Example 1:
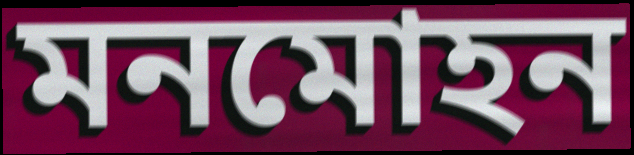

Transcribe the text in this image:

মনমোহন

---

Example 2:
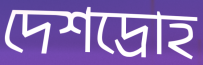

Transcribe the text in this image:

দেশদ্রোহ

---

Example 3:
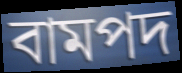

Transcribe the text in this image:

বামপদ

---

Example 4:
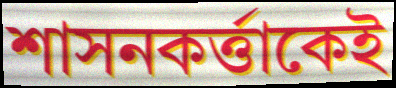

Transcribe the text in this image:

শাসনকর্ত্তাকেই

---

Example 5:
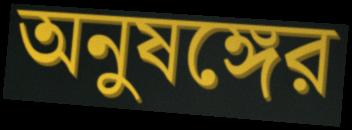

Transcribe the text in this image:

অনুষঙ্গের